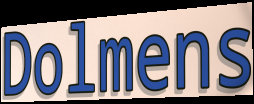
Dolmens